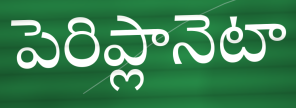
పెరిప్లానెటా